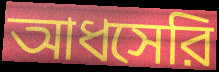
আধসেরি